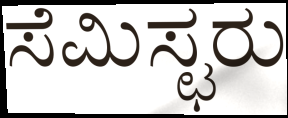
ಸೆಮಿಸ್ಟರು